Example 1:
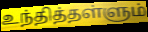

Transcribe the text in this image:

உந்தித்தள்ளும்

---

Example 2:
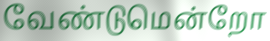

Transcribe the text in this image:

வேண்டுமென்றோ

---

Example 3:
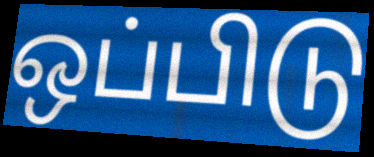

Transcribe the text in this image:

ஒப்பிடு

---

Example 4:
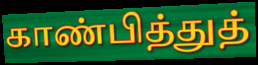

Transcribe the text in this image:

காண்பித்துத்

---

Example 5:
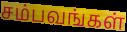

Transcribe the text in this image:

சம்பவங்கள்